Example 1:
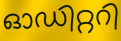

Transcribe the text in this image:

ഓഡിറ്ററി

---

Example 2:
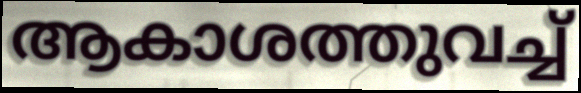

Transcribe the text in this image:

ആകാശത്തുവച്ച്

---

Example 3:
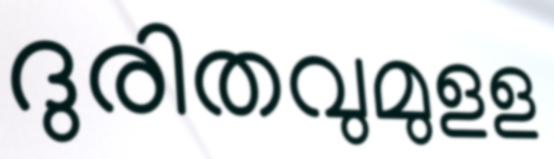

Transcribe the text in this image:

ദുരിതവുമുളള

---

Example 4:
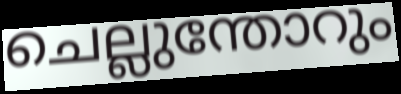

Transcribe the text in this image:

ചെല്ലുന്തോറും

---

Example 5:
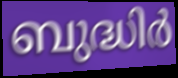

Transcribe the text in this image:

ബുദ്ധിർ